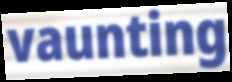
vaunting